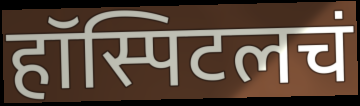
हॉस्पिटलचं